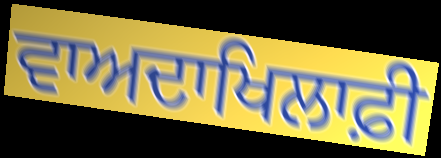
ਵਾਅਦਾਖਿਲਾਫ਼ੀ